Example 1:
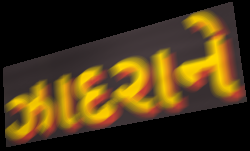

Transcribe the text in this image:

ઝાદરાને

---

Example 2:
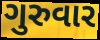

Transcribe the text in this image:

ગુરુવાર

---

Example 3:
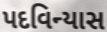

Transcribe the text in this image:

પદવિન્યાસ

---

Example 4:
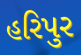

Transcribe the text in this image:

હરિપુર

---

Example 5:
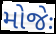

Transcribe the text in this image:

મોજેઃ